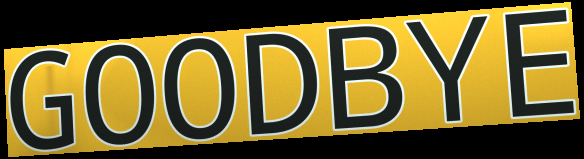
GOODBYE